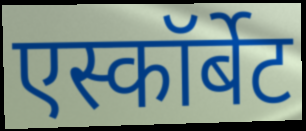
एस्कॉर्बेट